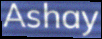
Ashay